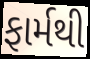
ફાર્મથી